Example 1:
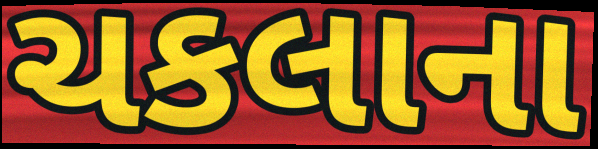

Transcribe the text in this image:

ચકલાના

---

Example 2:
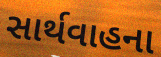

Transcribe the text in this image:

સાર્થવાહના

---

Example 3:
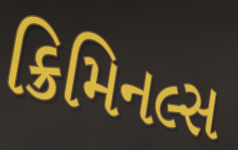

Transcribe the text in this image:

ક્રિમિનલ્સ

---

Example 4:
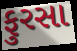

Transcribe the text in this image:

ફુરસા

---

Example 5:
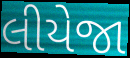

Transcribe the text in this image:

લીયેજા